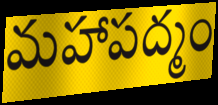
మహాపద్మం